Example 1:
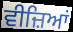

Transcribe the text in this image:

ਵੀਜ਼ਿਆਂ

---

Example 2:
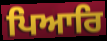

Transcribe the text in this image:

ਪਿਆਰਿ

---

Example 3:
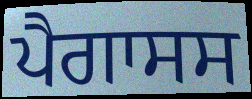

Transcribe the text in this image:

ਪੈਗਾਸਸ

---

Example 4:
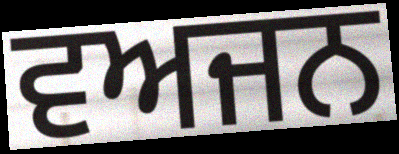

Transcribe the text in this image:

ਵਅਜਨ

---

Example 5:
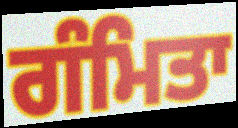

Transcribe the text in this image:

ਗੰਮਿਤਾ